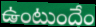
ఉంటుందేం